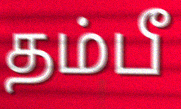
தம்பீ